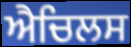
ਐਚਿਲਸ